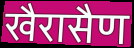
खैरासैण